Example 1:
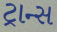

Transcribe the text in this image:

ટ્રાન્સ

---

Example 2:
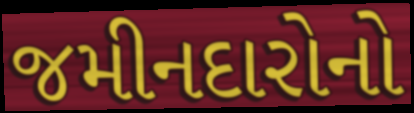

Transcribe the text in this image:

જમીનદારોનો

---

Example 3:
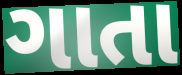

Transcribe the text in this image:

ગાતા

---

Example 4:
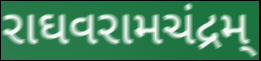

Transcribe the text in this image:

રાઘવરામચંદ્રમ્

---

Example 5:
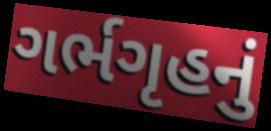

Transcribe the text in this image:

ગર્ભગૃહનું